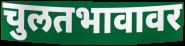
चुलतभावावर